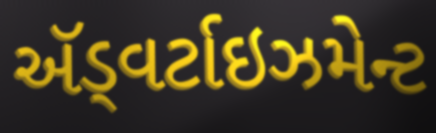
ઍડ્વર્ટાઇઝમેન્ટ